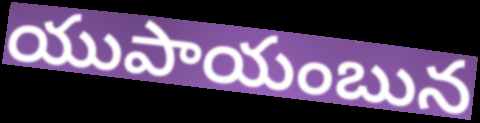
యుపాయంబున